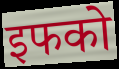
इफको